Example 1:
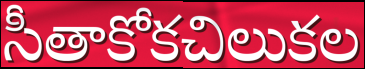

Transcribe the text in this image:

సీతాకోకచిలుకల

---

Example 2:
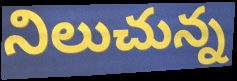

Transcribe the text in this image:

నిలుచున్న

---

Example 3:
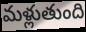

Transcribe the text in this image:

మళ్లుతుంది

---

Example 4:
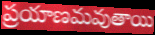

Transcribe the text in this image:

ప్రయాణమవుతాయి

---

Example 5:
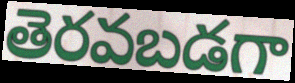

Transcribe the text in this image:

తెరవబడగా